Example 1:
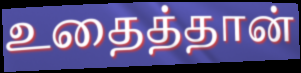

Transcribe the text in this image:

உதைத்தான்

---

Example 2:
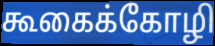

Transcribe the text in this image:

கூகைக்கோழி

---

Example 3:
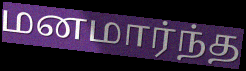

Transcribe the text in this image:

மனமார்ந்த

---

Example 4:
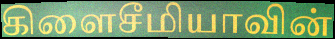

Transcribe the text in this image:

கிளைசீமியாவின்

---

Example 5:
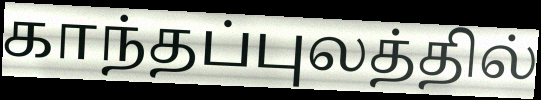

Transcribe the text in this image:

காந்தப்புலத்தில்